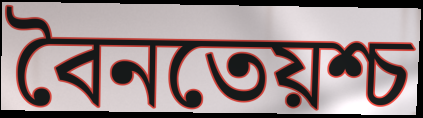
বৈনতেয়শ্চ